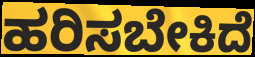
ಹರಿಸಬೇಕಿದೆ